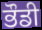
ਭੌਡੀ